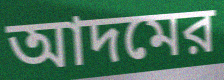
আদমের